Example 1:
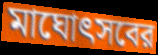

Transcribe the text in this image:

মাঘোৎসবের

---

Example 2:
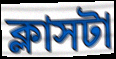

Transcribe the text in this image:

ক্লাসটা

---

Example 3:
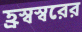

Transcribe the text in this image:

হ্রস্বস্বরের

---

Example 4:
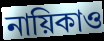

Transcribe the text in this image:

নায়িকাও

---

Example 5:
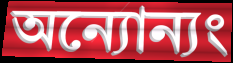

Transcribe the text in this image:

অন্যোন্যং